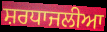
ਸ਼ਰਧਾਜਲੀਆ